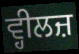
ਵ੍ਹੀਲਜ਼